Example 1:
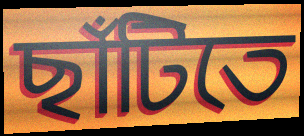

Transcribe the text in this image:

ছাঁটিতে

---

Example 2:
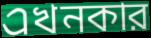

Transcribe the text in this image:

এখনকার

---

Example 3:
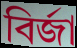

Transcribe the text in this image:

বির্জা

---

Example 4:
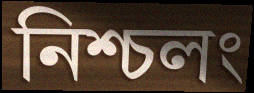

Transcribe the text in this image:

নিশ্চলং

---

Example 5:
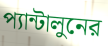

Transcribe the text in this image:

প্যান্টালুনের